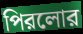
পিরলোর